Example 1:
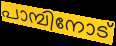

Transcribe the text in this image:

പാമ്പിനോട്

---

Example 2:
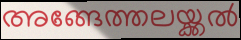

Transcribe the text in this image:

അങ്ങേത്തലയ്ക്കൽ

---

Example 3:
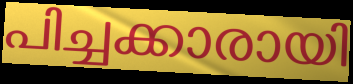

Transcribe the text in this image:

പിച്ചക്കാരായി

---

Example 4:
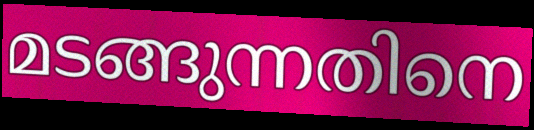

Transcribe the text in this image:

മടങ്ങുന്നതിനെ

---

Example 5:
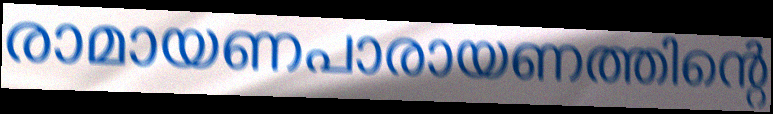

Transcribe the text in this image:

രാമായണപാരായണത്തിന്റെ